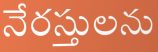
నేరస్తులను